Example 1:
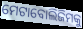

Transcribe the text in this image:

ମେଟାବୋଲିଜିମକୁ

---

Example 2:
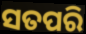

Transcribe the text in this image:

ସତପରି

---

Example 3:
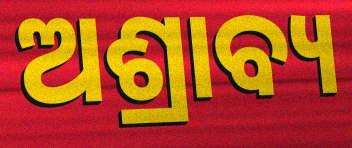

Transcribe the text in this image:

ଅଶ୍ରାବ୍ୟ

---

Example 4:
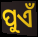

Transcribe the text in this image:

ପୁଏଁ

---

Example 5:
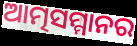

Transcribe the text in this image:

ଆତ୍ମସମ୍ମାନର